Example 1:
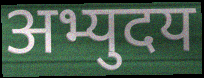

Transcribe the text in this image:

अभ्युदय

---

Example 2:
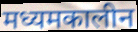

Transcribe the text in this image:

मध्यमकालीन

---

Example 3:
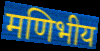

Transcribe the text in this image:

मणिभीय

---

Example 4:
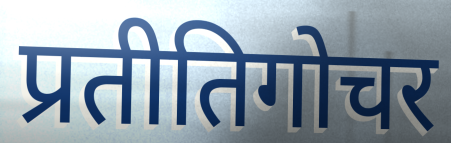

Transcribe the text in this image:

प्रतीतिगोचर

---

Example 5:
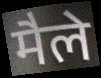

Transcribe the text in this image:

मैले